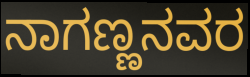
ನಾಗಣ್ಣನವರ